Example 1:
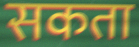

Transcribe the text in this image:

सकता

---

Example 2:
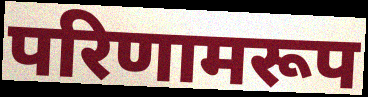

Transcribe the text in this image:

परिणामरूप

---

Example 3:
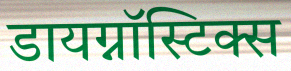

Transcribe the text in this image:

डायग्नॉस्टिक्स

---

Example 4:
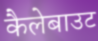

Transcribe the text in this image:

कैलेबाउट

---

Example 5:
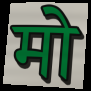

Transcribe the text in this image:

मो